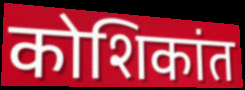
कोशिकांत